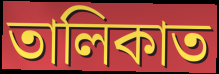
তালিকাত